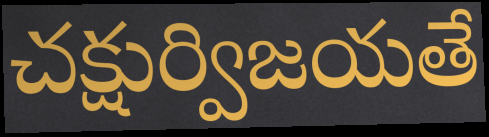
చక్షుర్విజయతే